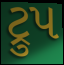
ટ્રુપ